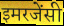
इमरजेंसी